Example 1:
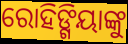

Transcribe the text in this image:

ରୋହିଙ୍ଗିୟାଙ୍କୁ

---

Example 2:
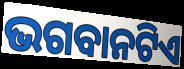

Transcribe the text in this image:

ଭଗବାନଟିଏ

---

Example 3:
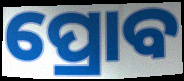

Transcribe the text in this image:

ପ୍ରୋବ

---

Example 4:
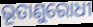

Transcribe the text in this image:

ଭୂତାଣୁରୋଧୀ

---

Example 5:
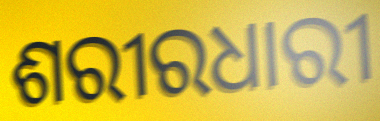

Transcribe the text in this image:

ଶରୀରଧାରୀ